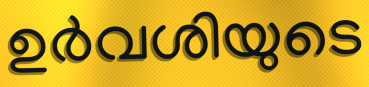
ഉർവശിയുടെ